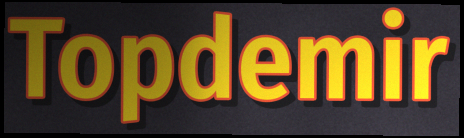
Topdemir